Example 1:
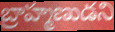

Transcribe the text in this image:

బ్రాహ్మణుడని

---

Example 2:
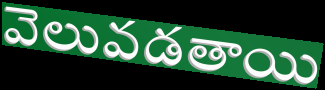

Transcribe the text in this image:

వెలువడతాయి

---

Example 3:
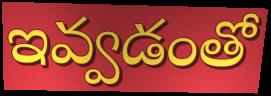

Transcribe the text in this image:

ఇవ్వడంతో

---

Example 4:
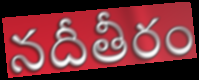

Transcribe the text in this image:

నదీతీరం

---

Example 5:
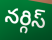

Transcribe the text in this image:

నర్గిస్